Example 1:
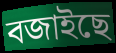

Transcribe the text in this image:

বজাইছে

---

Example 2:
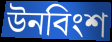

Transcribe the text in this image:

উনবিংশ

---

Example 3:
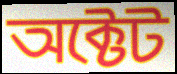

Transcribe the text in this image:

অক্টেট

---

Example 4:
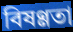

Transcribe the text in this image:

বিষণ্ণতা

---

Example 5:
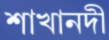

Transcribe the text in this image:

শাখানদী